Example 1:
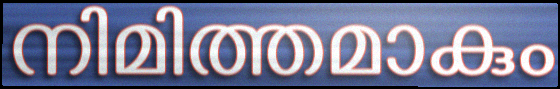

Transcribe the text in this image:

നിമിത്തമാകും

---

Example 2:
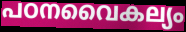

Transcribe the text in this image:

പഠനവൈകല്യം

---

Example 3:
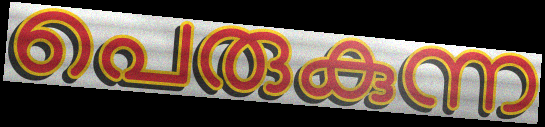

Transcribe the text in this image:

പെരുകുന്ന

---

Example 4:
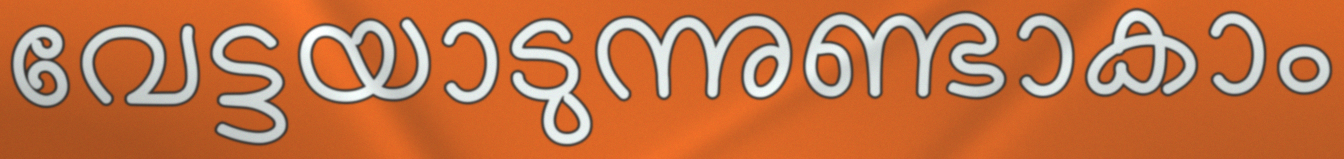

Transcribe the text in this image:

വേട്ടയാടുന്നുണ്ടാകാം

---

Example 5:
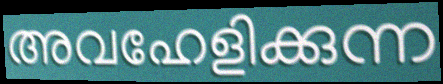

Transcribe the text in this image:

അവഹേളിക്കുന്ന